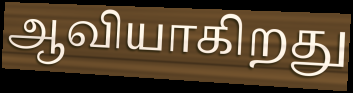
ஆவியாகிறது